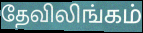
தேவிலிங்கம்